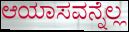
ಆಯಾಸವನ್ನೆಲ್ಲ